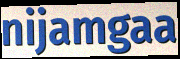
nijamgaa